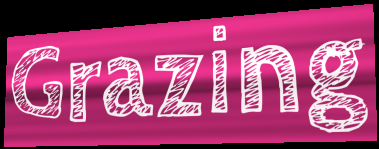
Grazing